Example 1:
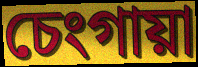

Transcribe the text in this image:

চেংগায়া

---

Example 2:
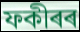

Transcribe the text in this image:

ফকীৰৰ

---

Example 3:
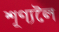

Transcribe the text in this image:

শূণ্যলৈ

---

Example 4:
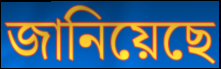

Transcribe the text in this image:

জানিয়েছে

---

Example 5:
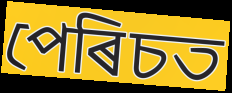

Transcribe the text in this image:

পেৰিচত